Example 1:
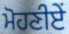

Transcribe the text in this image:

ਮੋਹਣੀਏਂ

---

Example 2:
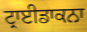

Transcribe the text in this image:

ਟ੍ਰਾਈਡਾਕਨਾ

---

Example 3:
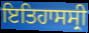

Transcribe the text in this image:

ਇਤਿਹਾਸਸ੍ਰੀ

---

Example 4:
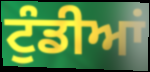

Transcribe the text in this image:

ਟੁੰਡੀਆਂ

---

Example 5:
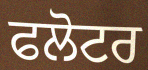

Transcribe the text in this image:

ਫਲੋਟਰ